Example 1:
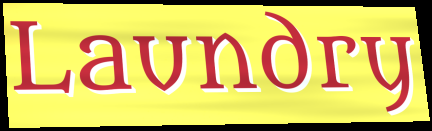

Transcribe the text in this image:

Laundry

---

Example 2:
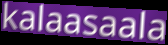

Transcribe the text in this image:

kalaasaala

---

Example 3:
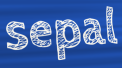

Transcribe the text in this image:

sepal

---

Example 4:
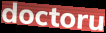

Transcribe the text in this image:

doctoru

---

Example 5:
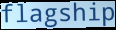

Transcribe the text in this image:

flagship